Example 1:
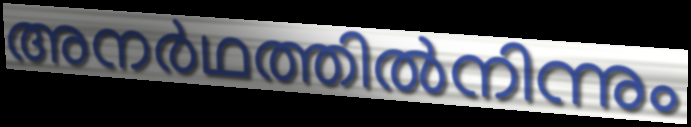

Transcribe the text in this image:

അനർഥത്തിൽനിന്നും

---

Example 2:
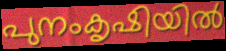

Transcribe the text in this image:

പുനംകൃഷിയിൽ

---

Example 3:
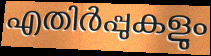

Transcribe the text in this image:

എതിർപ്പുകളും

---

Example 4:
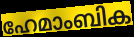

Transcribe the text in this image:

ഹേമാംബിക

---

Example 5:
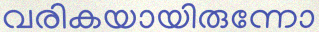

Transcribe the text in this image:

വരികയായിരുന്നോ